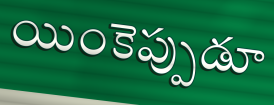
యింకెప్పుడూ